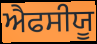
ਐਫਸੀਯੂ